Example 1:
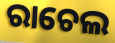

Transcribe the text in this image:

ରାଚେଲ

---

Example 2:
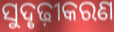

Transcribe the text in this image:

ସୁଦୃଢ଼ୀକରଣ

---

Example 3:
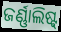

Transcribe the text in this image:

ଜର୍ଣ୍ଣାଲିଷ୍ଟ୍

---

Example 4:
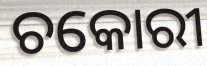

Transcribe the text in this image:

ଚକୋରୀ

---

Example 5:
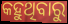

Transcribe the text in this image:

କହୁଥିବାରୁ